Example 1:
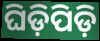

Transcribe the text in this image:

ଘିଡ଼ିପିଡ଼ି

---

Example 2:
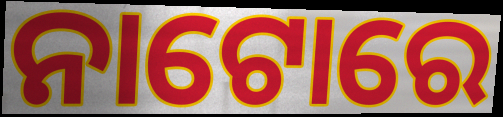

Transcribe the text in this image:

ନାଟୋରେ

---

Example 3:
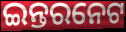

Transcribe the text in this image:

ଇନ୍ତରନେଟ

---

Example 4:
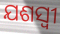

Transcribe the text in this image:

ଯଶସ୍ଵୀ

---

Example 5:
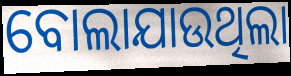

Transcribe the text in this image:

ବୋଲାଯାଉଥିଲା